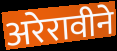
अरेरावीने